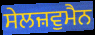
ਸੇਲਜ਼ਵੁਮੈਨ